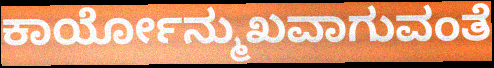
ಕಾರ್ಯೋನ್ಮುಖವಾಗುವಂತೆ